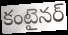
కంటైనర్